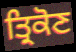
ਤ੍ਰਿਕੋਣ